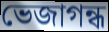
ভেজাগন্ধ